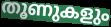
തൂണുകളും